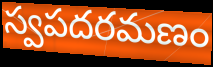
స్వపదరమణం